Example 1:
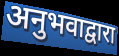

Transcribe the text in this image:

अनुभवाद्वारा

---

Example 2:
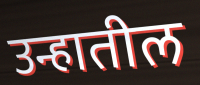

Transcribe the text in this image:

उन्हातील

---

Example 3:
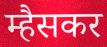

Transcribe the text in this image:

म्हैसकर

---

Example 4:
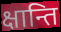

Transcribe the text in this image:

क्षान्ति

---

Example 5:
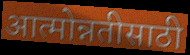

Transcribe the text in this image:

आत्मोन्नतीसाठी